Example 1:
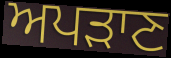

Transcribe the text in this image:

ਅਪੜਾਣ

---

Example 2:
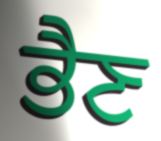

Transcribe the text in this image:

ਭੈਣ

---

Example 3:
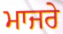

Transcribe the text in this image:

ਮਾਜਰੇ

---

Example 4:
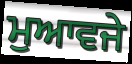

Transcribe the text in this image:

ਮੁਆਵਜੇ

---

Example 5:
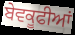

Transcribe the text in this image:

ਬੇਵਕੂਫੀਆਂ